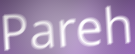
Pareh